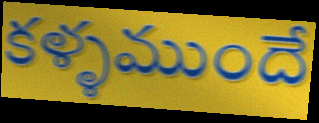
కళ్ళముందే